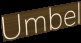
Umbel